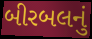
બીરબલનું